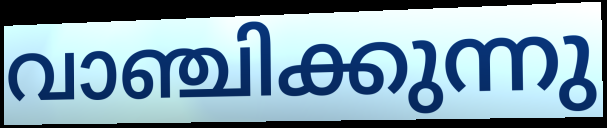
വാഞ്ചിക്കുന്നു